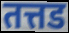
तत्तड